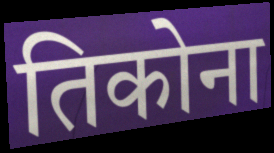
तिकोना